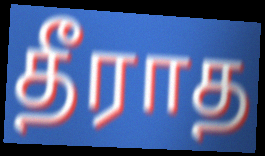
தீராத